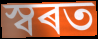
স্বৰত